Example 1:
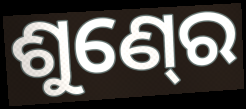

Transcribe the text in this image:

ଶୁଣ୍‍ରେ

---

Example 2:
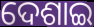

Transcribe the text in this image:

ଦେଶାଇ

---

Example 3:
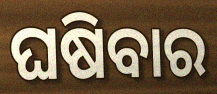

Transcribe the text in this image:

ଘଷିବାର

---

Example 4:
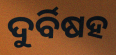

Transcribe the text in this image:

ଦୁର୍ବିଷହ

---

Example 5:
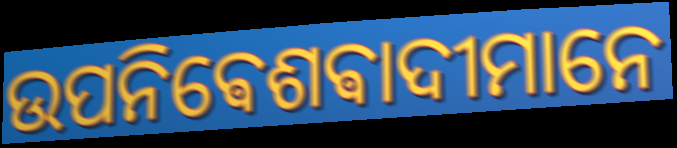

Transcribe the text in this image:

ଉପନିଵେଶଵାଦୀମାନେ